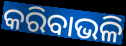
କରିବାଭଳି